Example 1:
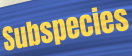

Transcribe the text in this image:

Subspecies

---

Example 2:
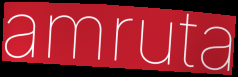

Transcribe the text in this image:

amruta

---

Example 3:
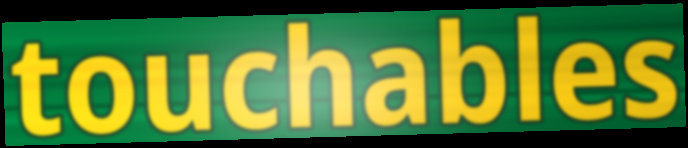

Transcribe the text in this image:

touchables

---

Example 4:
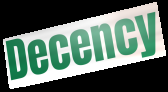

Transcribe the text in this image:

Decency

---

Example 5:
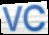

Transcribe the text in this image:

VC